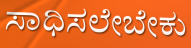
ಸಾಧಿಸಲೇಬೇಕು